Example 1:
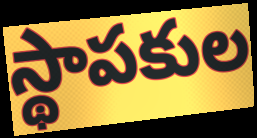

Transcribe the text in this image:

స్థాపకుల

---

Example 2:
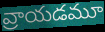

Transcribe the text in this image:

వ్రాయడమూ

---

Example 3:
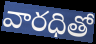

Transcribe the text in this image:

వారధితో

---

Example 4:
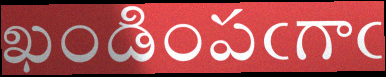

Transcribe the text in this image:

ఖండింపఁగాఁ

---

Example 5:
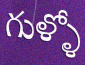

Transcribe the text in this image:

గుళ్ళో